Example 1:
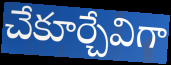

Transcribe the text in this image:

చేకూర్చేవిగా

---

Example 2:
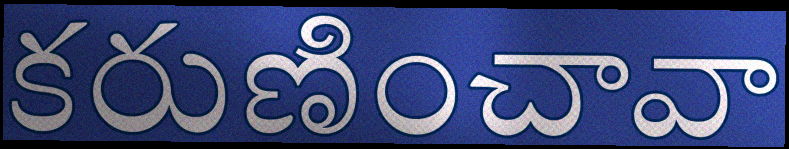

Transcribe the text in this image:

కరుణించావా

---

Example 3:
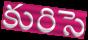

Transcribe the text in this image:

కురిసె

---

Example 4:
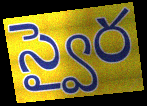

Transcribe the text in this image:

స్వైర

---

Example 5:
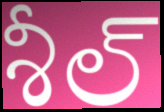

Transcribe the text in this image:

శీల్